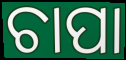
ଚାପା